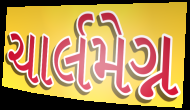
ચાર્લમેગ્ન